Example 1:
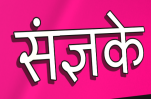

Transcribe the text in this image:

संज्ञके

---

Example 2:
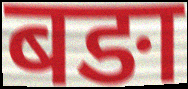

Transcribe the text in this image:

बङा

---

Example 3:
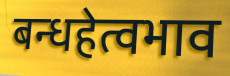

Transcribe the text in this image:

बन्धहेत्वभाव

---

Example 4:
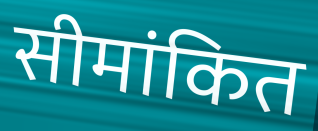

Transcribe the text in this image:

सीमांकित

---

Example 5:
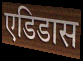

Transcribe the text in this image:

एडिडास